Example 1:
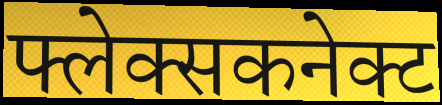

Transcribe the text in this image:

फ्लेक्सकनेक्ट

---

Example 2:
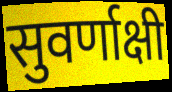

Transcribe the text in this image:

सुवर्णाक्षी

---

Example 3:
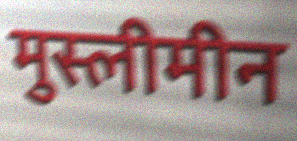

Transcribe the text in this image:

मुस्लीमीन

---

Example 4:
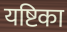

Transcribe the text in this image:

यष्टिका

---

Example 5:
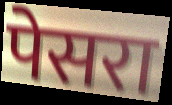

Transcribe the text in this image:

पेसरा